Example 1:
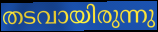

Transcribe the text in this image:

തടവായിരുന്നു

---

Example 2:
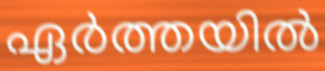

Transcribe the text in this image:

ഏർത്തയിൽ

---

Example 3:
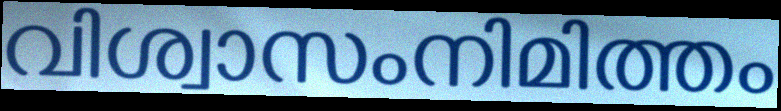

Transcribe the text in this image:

വിശ്വാസംനിമിത്തം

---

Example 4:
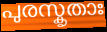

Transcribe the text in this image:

പുരസ്കൃതാഃ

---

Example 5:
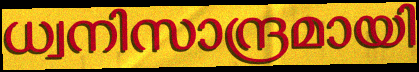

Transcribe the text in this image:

ധ്വനിസാന്ദ്രമായി